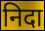
निदा